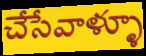
చేసేవాళ్ళూ